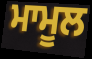
ਮਾਮੂਲ